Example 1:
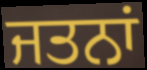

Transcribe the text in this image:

ਜਤਨਾਂ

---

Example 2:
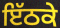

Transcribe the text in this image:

ਇੱਠਕੇ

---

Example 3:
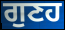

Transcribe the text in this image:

ਗੁਣਹ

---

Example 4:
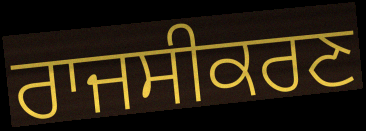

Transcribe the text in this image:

ਰਾਜਸੀਕਰਣ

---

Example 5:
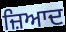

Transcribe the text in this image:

ਜ਼ਿਆਦ